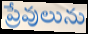
ప్రేవులును